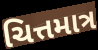
ચિત્તમાત્ર